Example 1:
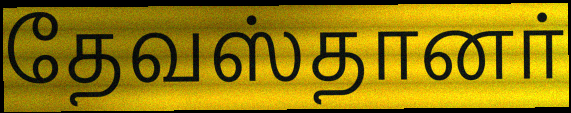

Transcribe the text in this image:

தேவஸ்தானர்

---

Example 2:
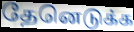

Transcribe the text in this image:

தேனெடுக்க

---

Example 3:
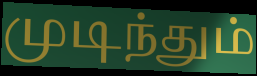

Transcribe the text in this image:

முடிந்தும்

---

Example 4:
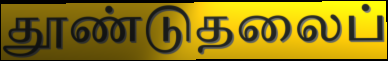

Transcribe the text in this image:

தூண்டுதலைப்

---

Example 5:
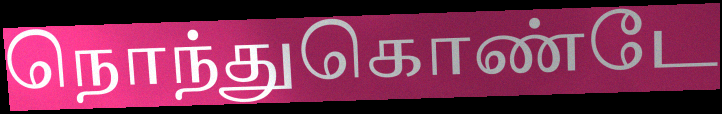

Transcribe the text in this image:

நொந்துகொண்டே